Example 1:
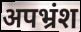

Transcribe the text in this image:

अपभ्रंश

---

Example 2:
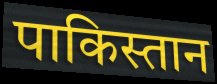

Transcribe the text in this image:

पाकिस्‍तान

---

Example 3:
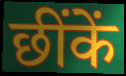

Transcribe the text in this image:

छींकें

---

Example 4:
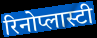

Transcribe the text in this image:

रिनोप्लास्टी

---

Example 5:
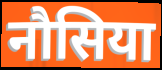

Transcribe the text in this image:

नौसिया